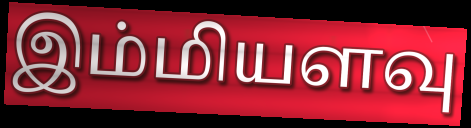
இம்மியளவு